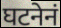
घटनेनं